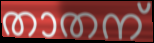
താതന്